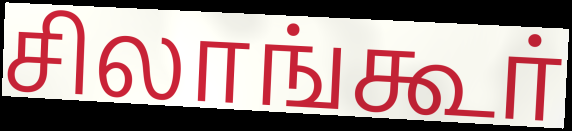
சிலாங்கூர்